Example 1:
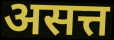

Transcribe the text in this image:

असत्त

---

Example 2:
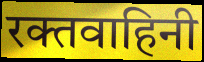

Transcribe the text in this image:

रक्तवाहिनी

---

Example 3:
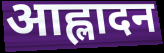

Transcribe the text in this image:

आह्लादन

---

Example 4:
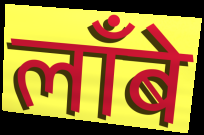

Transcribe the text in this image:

लाँबे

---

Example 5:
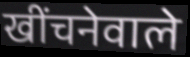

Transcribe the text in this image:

खींचनेवाले